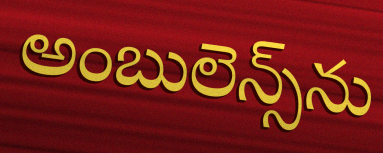
అంబులెన్స్‌ను